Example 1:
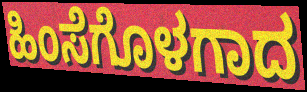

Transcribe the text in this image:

ಹಿಂಸೆಗೊಳಗಾದ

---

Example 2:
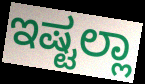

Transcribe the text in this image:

ಇಷ್ಟಲ್ಲಾ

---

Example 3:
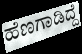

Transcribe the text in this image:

ಹೆಣಗಾಡಿದ್ದೆ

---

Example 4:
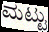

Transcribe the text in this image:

ಮಟ್ಟು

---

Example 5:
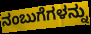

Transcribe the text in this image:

ನಂಬುಗೆಗಳನ್ನು